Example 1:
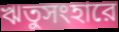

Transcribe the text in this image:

ঋতুসংহারে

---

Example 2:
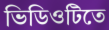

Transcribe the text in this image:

ভিডিওটিতে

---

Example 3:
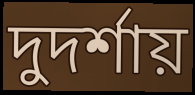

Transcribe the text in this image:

দুদর্শায়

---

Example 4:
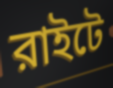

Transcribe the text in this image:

রাইটে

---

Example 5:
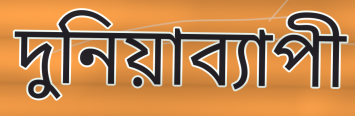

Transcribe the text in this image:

দুনিয়াব্যাপী